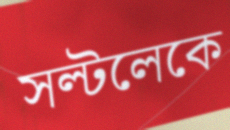
সল্টলেকে